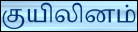
குயிலினம்